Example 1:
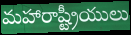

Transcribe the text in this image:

మహారాష్ట్రీయులు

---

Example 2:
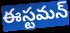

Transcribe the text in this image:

ఈస్టమన్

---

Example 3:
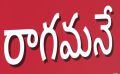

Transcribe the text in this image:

రాగమనే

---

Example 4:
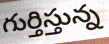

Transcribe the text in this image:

గుర్తిస్తున్న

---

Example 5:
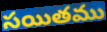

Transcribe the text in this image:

సయితము